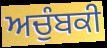
ਅਚੁੰਬਕੀ